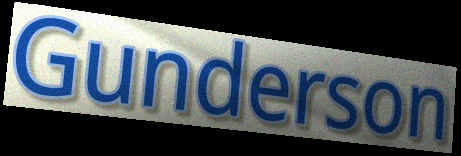
Gunderson